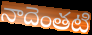
నాదెంతటి